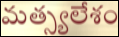
మత్స్యలేశం